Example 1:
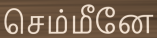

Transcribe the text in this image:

செம்மீனே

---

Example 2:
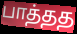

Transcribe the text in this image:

பாத்தத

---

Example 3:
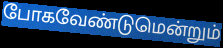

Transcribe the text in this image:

போகவேண்டுமென்றும்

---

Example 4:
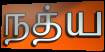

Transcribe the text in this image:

நத்ய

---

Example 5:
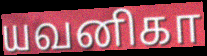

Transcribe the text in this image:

யவனிகா